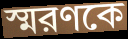
স্মরণকে